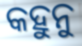
କହୁନୁ